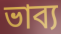
ভাব্য